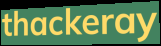
thackeray